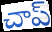
చాప్